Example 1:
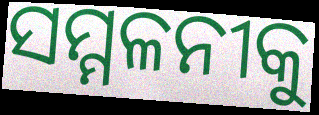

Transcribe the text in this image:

ସମ୍ମଳନୀକୁ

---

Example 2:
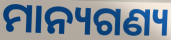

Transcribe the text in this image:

ମାନ୍ୟଗଣ୍ୟ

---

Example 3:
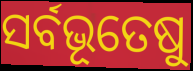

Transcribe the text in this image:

ସର୍ବଭୂତେଷୁ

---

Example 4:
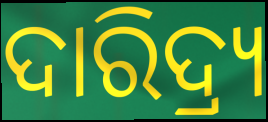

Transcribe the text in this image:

ଦାରିଦ୍ର୍ୟ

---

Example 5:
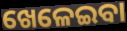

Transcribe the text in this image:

ଖେଳେଇବା